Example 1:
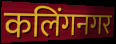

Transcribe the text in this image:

कलिंगनगर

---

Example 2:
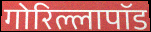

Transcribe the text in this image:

गोरिल्लापॉड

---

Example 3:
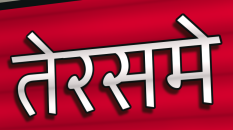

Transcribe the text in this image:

तेरसमे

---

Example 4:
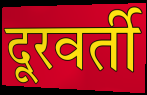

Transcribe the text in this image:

दूरवर्ती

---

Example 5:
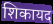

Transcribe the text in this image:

शिकायद